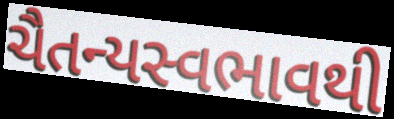
ચૈતન્યસ્વભાવથી